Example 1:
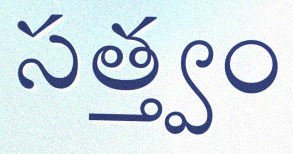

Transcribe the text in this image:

సత్త్వం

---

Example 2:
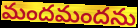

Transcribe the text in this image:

మందమందను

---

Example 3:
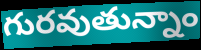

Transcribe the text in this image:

గురవుతున్నాం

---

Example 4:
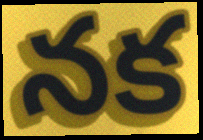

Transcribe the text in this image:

నక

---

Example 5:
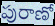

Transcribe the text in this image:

పురాణో